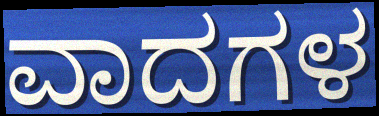
ವಾದಗಳ